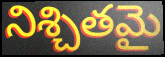
నిశ్చితమై